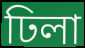
ঢিলা